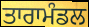
ਤਾਰਾਮੰਡਲ